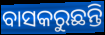
ବାସକରୁଛନ୍ତି